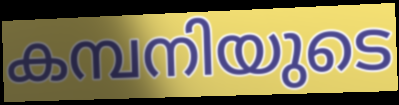
കമ്പനിയുടെ